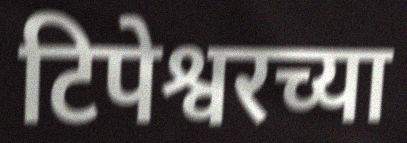
टिपेश्वरच्या